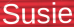
Susie